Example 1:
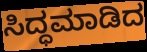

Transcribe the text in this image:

ಸಿದ್ಧಮಾಡಿದ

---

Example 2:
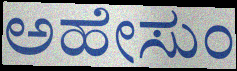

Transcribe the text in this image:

ಅಹೇಸುಂ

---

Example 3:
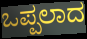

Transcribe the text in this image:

ಒಪ್ಪಲಾದ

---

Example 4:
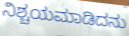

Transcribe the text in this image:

ನಿಶ್ಚಯಮಾಡಿದನು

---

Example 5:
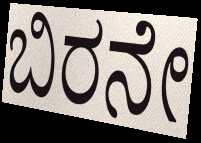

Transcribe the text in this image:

ಬಿರನೇ